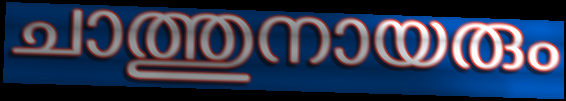
ചാത്തുനായരും